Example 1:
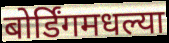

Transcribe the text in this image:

बोर्डिंगमधल्या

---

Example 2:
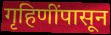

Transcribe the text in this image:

गृहिणींपासून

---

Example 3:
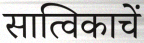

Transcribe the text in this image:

सात्विकाचें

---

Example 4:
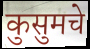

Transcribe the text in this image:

कुसुमचे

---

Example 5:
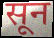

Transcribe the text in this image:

सून